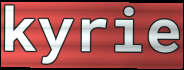
kyrie